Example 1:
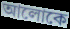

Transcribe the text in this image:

আলোকে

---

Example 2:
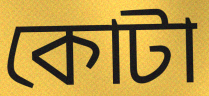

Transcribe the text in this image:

কোটা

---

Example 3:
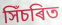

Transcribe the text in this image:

সিঁচৰিত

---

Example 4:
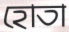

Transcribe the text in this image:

হোতা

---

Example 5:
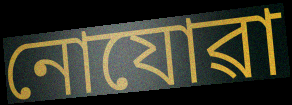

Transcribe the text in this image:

নোযোৱা